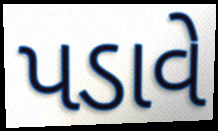
પડાવે